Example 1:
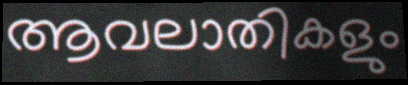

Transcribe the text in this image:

ആവലാതികളും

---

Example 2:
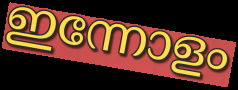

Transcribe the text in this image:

ഇന്നോളം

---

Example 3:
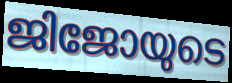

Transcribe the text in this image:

ജിജോയുടെ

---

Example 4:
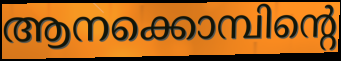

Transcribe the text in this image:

ആനക്കൊമ്പിന്റെ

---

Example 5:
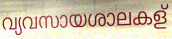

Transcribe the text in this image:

വ്യവസായശാലകള്